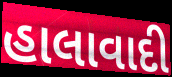
હાલાવાદી